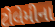
ટોલેમીના